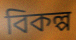
বিকল্প